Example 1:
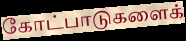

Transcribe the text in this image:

கோட்பாடுகளைக்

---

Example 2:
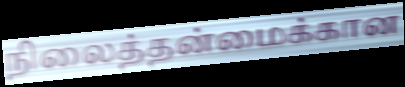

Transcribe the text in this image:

நிலைத்தன்மைக்கான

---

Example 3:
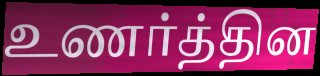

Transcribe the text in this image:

உணர்த்தின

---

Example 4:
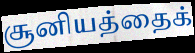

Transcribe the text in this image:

சூனியத்தைக்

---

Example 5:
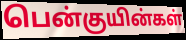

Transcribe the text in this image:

பென்குயின்கள்